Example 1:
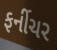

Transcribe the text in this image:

ફર્નીચર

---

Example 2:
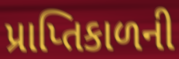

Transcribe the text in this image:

પ્રાપ્તિકાળની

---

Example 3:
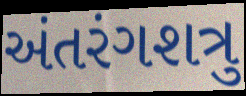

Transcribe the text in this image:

અંતરંગશત્રુ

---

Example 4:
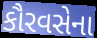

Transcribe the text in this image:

કૌરવસેના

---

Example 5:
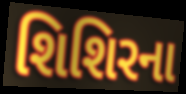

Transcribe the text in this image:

શિશિરના